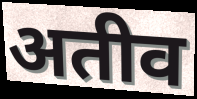
अतीव